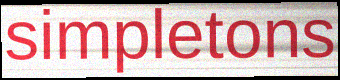
simpletons